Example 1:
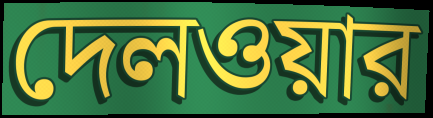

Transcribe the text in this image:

দেলওয়ার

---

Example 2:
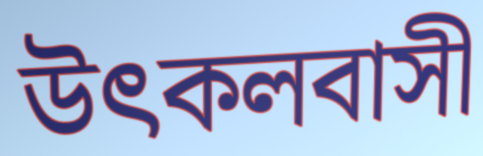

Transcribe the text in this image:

উৎকলবাসী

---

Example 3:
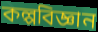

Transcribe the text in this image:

কল্পবিজ্ঞান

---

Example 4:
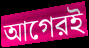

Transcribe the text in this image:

আগেরই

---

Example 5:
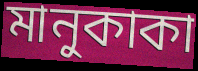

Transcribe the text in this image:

মানুকাকা